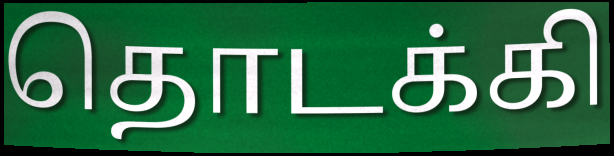
தொடக்கி